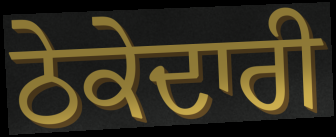
ਠੇਕੇਦਾਰੀ